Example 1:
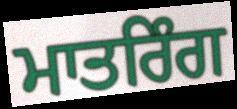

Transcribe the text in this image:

ਮਾਤਰਿੰਗ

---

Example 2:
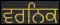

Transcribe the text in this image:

ਵਰਨਿਕ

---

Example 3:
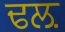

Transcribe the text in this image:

ਢਲ਼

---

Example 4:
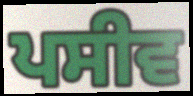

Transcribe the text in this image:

ਪਸੀਵ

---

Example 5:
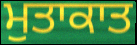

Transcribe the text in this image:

ਮੁਤਾਕਾਤ